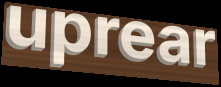
uprear